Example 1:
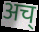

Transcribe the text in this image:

अच्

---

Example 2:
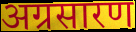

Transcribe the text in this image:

अग्रसारण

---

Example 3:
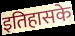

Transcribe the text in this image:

इतिहासके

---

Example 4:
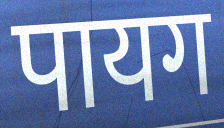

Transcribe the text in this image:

पायग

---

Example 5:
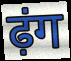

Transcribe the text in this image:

ढ़ंग